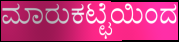
ಮಾರುಕಟ್ಟೆಯಿಂದ